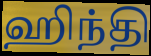
ஹிந்தி